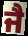
ਜੈ